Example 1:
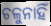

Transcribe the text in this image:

ଚଳୁନାହିଁ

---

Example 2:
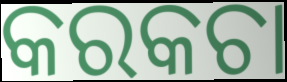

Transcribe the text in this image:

କରକଚା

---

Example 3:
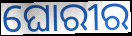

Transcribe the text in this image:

ଘୋରୀର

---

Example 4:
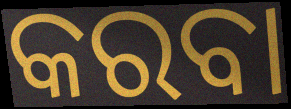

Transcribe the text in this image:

କରବା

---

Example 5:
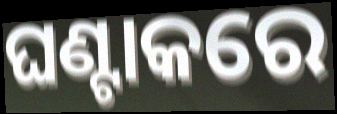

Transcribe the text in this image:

ଘଣ୍ଟାକରେ